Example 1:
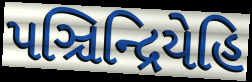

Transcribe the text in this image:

પઞ્ચિન્દ્રિયેહિ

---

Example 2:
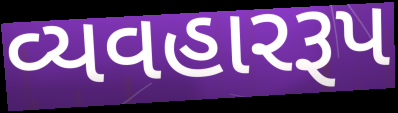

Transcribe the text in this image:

વ્યવહારરૂપ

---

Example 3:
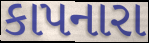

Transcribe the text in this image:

કાપનારા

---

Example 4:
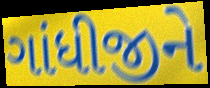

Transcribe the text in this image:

ગાંધીજીને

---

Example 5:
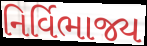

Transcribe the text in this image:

નિર્વિભાજ્ય